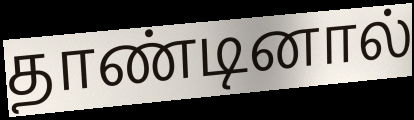
தாண்டினால்